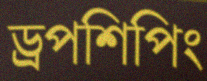
ড্রপশিপিং